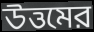
উত্তমের